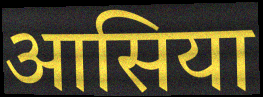
आसिया